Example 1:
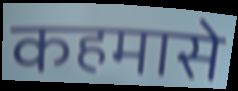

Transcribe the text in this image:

कहमासे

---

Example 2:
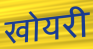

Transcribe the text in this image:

खोयरी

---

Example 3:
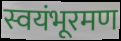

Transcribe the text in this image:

स्वयंभूरमण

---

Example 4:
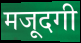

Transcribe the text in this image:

मजूदगी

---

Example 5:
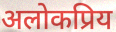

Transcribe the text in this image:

अलोकप्रिय